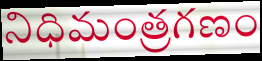
నిధిమంత్రగణం